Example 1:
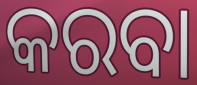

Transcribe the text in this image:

କରବା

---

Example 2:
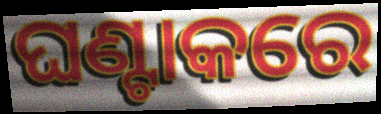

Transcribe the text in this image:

ଘଣ୍ଟାକରେ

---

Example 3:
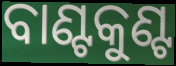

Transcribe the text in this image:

ବାଣ୍ଟକୁଣ୍ଟ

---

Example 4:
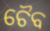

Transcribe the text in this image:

ଚୈବ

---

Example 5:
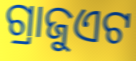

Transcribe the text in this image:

ଗ୍ରାଜୁଏଟ